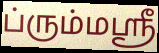
ப்ரும்மஸ்ரீ